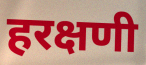
हरक्षणी